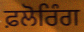
ਫ਼ਲੋਰਿੰਗ